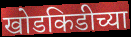
खोडकिडीच्या